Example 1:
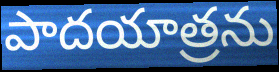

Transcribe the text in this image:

పాదయాత్రను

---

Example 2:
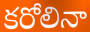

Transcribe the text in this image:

కరోలినా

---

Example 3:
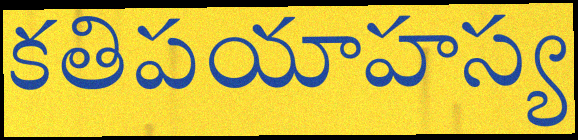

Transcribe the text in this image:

కతిపయాహస్య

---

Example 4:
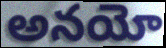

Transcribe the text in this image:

అనయో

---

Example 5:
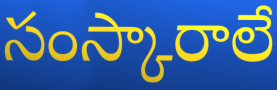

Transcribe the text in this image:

సంస్కారాలే